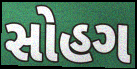
સોહગ